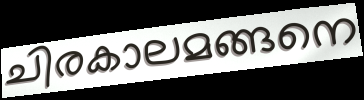
ചിരകാലമങ്ങനെ